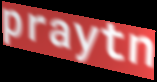
praytn